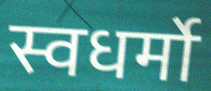
स्वधर्मो